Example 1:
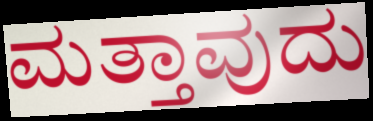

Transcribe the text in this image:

ಮತ್ತಾವುದು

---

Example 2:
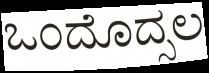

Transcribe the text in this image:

ಒಂದೊದ್ಸಲ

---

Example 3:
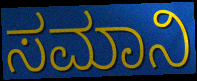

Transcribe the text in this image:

ಸಮಾನಿ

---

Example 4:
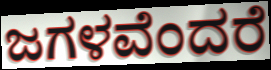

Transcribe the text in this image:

ಜಗಳವೆಂದರೆ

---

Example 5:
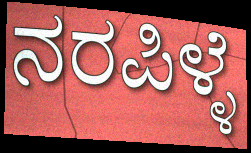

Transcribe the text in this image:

ನರಪಿಳ್ಳೆ